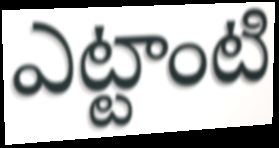
ఎట్టాంటి